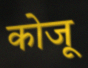
कोजू